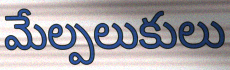
మేల్పలుకులు